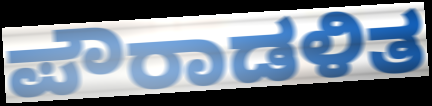
ಪೌರಾಡಳಿತ